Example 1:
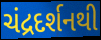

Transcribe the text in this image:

ચંદ્રદર્શનથી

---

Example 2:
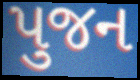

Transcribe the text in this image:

પુજન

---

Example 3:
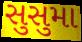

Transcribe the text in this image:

સુસુમા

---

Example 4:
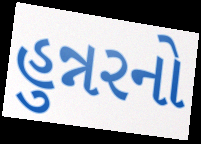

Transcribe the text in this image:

હુન્નરનો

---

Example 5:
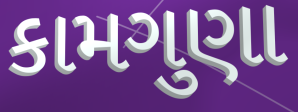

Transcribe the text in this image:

કામગુણા